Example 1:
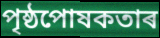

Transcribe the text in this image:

পৃষ্ঠপোষকতাৰ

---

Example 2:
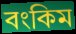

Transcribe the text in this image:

বংকিম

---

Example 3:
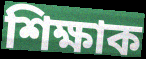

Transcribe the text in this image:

শিক্ষাক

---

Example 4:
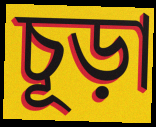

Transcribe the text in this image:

চূড়া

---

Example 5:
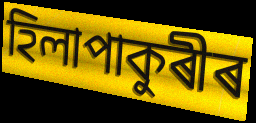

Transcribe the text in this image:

হিলাপাকুৰীৰ